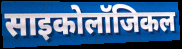
साइकोलॉजिकल